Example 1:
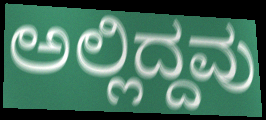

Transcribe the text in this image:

ಅಲ್ಲಿದ್ದವು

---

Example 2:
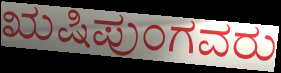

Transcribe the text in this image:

ಋಷಿಪುಂಗವರು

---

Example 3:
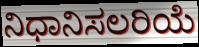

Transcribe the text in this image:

ನಿಧಾನಿಸಲರಿಯೆ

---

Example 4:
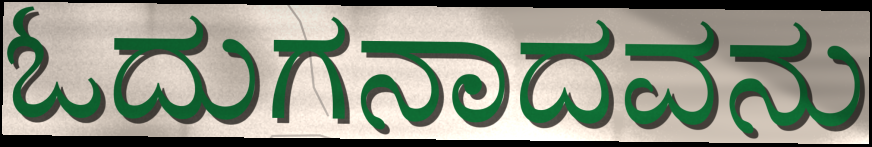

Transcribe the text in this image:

ಓದುಗನಾದವನು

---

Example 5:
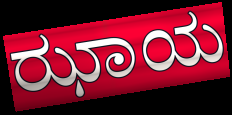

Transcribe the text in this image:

ಝಾಯ